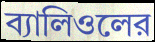
ব্যালিওলের